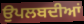
ਉਪਲਬਦੀਆਂ